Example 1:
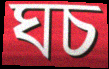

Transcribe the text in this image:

ঘচ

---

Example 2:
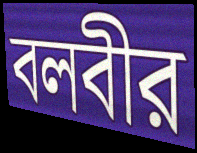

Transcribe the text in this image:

বলবীর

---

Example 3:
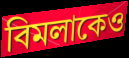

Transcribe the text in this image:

বিমলাকেও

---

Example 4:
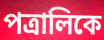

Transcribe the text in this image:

পত্রালিকে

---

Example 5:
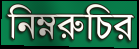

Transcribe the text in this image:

নিম্নরুচির